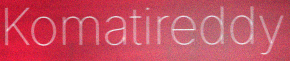
Komatireddy